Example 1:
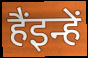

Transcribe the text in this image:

हैंइन्हें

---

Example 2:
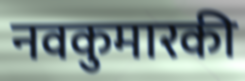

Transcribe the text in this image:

नवकुमारकी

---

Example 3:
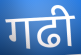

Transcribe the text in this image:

गढी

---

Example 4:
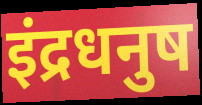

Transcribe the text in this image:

इंद्रधनुष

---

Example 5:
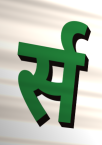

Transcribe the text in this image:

र्स